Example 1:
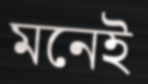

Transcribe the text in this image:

মনেই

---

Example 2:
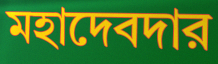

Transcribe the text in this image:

মহাদেবদার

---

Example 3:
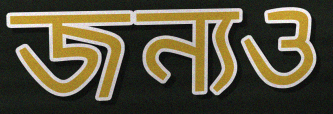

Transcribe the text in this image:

জন্যও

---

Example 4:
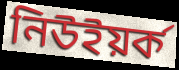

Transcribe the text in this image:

নিউইয়র্ক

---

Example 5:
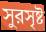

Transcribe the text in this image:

সুরসৃষ্ট